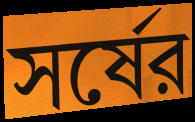
সর্ষের